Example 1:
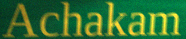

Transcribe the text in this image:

Achakam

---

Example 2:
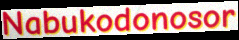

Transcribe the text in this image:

Nabukodonosor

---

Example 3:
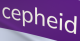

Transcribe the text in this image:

cepheid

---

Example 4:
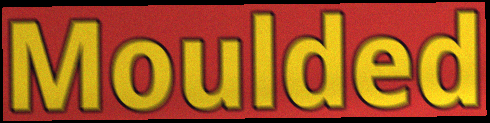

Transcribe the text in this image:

Moulded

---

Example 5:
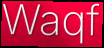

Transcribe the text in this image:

Waqf